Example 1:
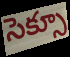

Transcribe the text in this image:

సెక్సూ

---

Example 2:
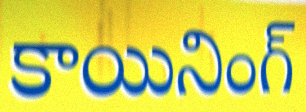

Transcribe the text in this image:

కాయినింగ్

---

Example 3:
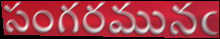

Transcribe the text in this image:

సంగరమునఁ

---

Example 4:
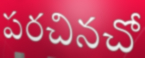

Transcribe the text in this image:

పరచినచో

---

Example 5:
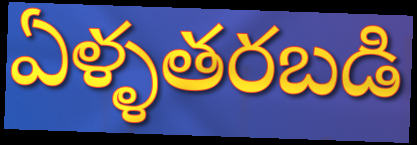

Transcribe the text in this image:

ఏళ్ళతరబడి